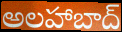
అలహాబాద్